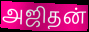
அஜிதன்